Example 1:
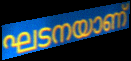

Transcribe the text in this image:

ഘടനയാണ്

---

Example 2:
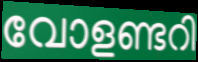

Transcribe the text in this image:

വോളണ്ടറി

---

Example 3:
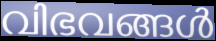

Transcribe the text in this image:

വിഭവങ്ങൾ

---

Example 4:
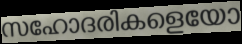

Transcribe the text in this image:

സഹോദരികളെയോ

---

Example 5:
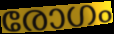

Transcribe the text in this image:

രോഗം